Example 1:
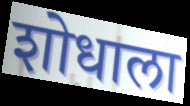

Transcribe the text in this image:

शोधाला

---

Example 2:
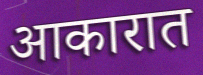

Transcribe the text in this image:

आकारात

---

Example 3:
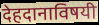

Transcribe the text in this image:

देहदानाविषयी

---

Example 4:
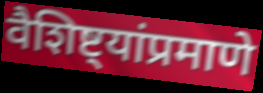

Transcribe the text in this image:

वैशिष्ट्यांप्रमाणे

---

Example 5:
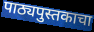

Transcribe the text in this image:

पाठ्यपुस्तकाचा